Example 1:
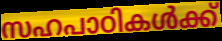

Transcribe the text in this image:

സഹപാഠികൾക്ക്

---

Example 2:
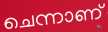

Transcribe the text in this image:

ചെന്നാണ്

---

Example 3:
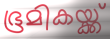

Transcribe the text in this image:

ഭൂമികയ്ക്ക്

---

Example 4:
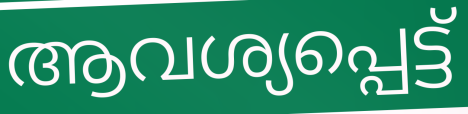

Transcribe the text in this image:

ആവശ്യപ്പെട്ട്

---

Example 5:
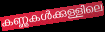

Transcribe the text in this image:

കണ്ണുകൾക്കുള്ളിലെ